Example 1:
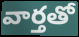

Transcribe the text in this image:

వార్తతో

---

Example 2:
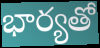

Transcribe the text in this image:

భార్యతో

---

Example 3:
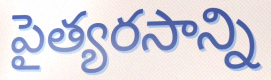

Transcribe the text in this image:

పైత్యరసాన్ని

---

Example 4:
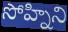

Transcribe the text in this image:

సోహ్నిని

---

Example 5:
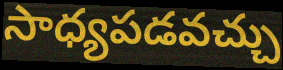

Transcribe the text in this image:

సాధ్యపడవచ్చు